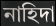
নাহিদা